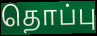
தொப்பு